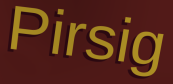
Pirsig